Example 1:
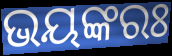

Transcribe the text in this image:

ଭୟଙ୍କରଃ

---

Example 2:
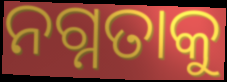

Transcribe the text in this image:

ନଗ୍ନତାକୁ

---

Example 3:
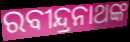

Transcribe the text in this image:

ରବୀନ୍ଦ୍ରନାଥଙ୍କ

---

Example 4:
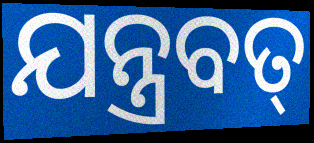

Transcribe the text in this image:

ଯନ୍ତ୍ରବତ୍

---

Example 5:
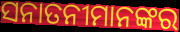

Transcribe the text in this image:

ସନାତନୀମାନଙ୍କର